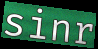
sinr